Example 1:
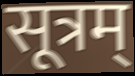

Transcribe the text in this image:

सूत्रम्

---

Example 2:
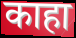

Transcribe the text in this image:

काहा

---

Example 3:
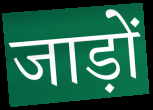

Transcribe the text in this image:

जाड़ों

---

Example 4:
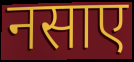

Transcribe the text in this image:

नसाए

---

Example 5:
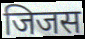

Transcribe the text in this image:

जिजस